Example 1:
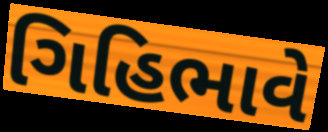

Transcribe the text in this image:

ગિહિભાવે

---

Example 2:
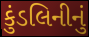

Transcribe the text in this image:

કુંડલિનીનું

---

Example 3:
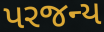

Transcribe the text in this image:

પરજન્ય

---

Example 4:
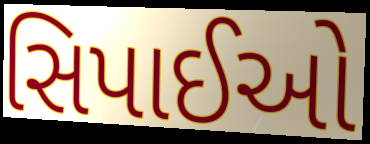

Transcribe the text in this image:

સિપાઈઓ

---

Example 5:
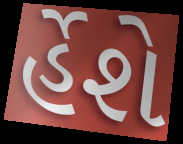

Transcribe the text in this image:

ર્હેશે